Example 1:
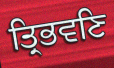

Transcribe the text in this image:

ਤ੍ਰਿਭਵਣਿ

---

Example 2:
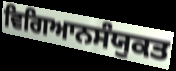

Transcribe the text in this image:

ਵਿਗਿਆਨਸੰਯੁਕਤ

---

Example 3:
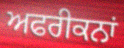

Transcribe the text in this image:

ਅਫਰੀਕਨਾਂ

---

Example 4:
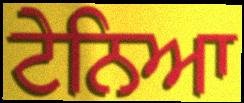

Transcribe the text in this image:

ਟੇਨਿਆ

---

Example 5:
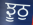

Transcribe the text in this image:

ਝੂਠੁ